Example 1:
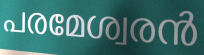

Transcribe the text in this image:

പരമേശ്വരൻ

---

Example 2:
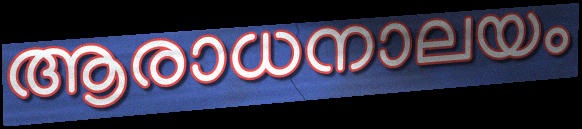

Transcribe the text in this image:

ആരാധനാലയം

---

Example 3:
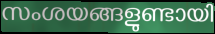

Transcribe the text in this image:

സംശയങ്ങളുണ്ടായി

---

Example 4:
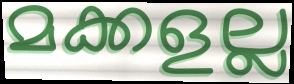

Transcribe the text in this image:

മക്കളല്ല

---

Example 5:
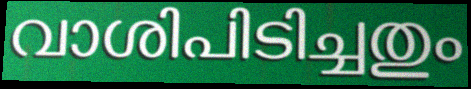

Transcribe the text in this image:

വാശിപിടിച്ചതും